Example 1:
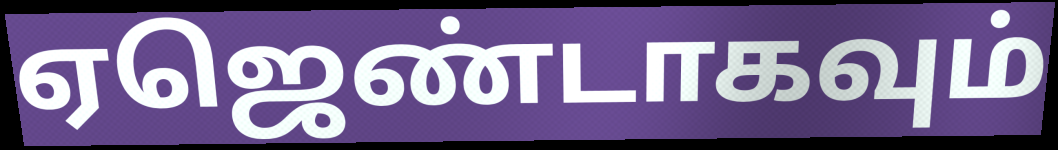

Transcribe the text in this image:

ஏஜெண்டாகவும்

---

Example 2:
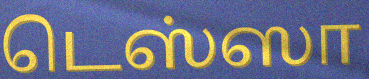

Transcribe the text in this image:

டெஸ்ஸா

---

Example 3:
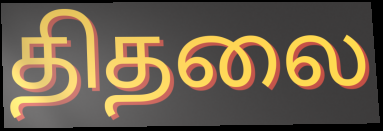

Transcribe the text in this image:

திதலை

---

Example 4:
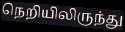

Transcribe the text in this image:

நெறியிலிருந்து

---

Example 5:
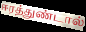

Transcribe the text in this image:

ஈரத்துண்டால்